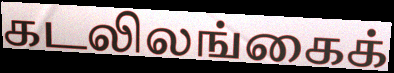
கடலிலங்கைக்